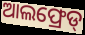
ଆଲଫ୍ରେଡ୍